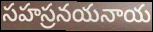
సహస్రనయనాయ